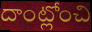
దాంట్లోంచి